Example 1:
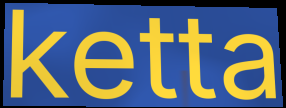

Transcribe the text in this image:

ketta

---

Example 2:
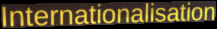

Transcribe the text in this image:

Internationalisation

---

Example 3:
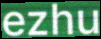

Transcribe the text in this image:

ezhu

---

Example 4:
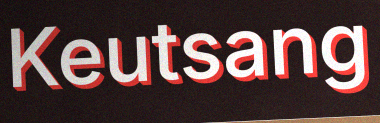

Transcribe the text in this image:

Keutsang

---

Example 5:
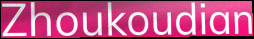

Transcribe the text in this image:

Zhoukoudian